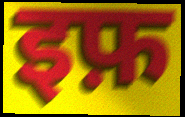
इफ़